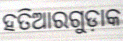
ହତିଆରଗୁଡ଼ାକ